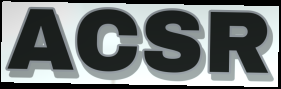
ACSR